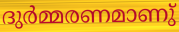
ദുർമ്മരണമാണു്